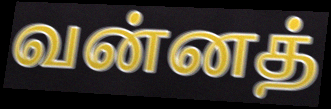
வன்னத்